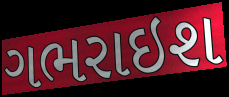
ગભરાઇશ